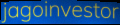
jagoinvestor